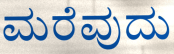
ಮರೆವುದು